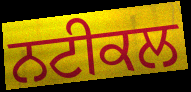
ਨਟੀਕਲ